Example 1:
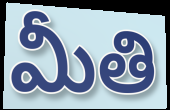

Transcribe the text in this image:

మీతి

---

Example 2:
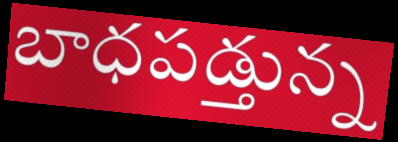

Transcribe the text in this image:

బాధపడ్తున్న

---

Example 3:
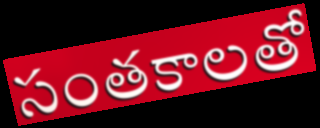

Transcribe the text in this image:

సంతకాలతో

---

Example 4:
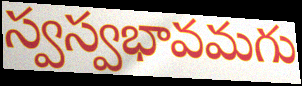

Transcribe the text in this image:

స్వస్వభావమగు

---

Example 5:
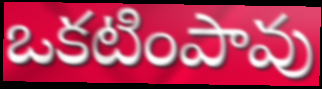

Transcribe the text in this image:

ఒకటింపావు